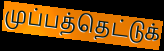
முப்பத்தெட்டுக்